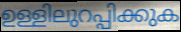
ഉള്ളിലുറപ്പിക്കുക